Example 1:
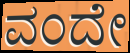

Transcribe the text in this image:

ವಂದೇ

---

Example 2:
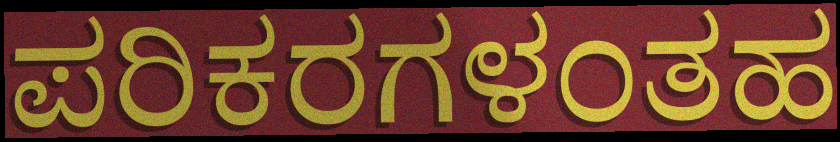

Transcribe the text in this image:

ಪರಿಕರಗಳಂತಹ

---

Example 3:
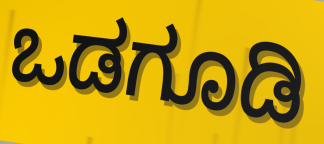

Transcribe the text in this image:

ಒಡಗೂಡಿ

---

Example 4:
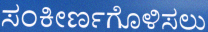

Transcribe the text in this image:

ಸಂಕೀರ್ಣಗೊಳಿಸಲು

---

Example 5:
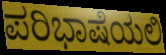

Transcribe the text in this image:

ಪರಿಭಾಷೆಯಲಿ